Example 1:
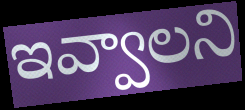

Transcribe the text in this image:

ఇవ్వాలని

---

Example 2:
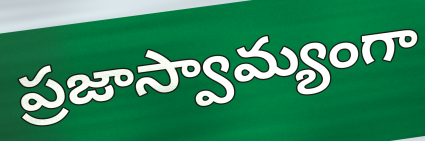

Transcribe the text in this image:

ప్రజాస్వామ్యంగా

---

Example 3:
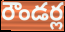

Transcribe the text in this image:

రౌండర్ల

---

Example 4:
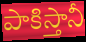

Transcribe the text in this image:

పాకిస్తానీ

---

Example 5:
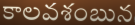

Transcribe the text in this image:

కాలవశంబున